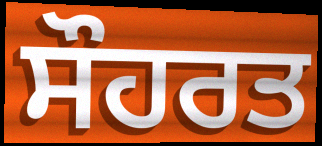
ਸੌਹਰਤ